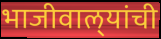
भाजीवाल्यांची